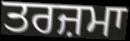
ਤਰਜ਼ਮਾ